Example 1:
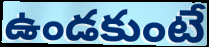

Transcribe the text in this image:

ఉండకుంటే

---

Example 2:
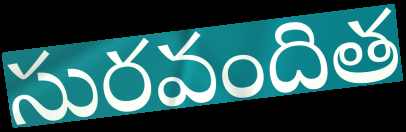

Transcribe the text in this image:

సురవందిత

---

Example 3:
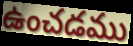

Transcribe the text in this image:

ఉంచడము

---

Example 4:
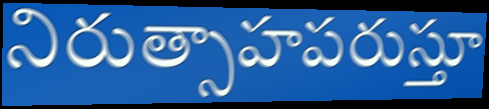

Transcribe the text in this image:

నిరుత్సాహపరుస్తూ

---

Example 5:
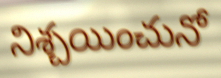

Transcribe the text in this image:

నిశ్చయించునో